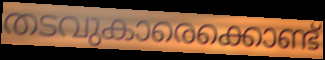
തടവുകാരെക്കൊണ്ട്